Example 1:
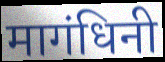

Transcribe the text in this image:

मागंधिनी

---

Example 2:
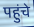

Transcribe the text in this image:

पहुंचे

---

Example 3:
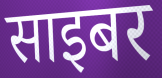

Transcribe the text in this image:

साइबर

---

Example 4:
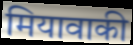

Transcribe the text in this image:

मियावाकी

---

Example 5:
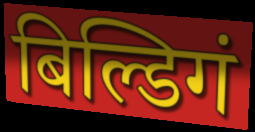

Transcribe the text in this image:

बिल्डिगं